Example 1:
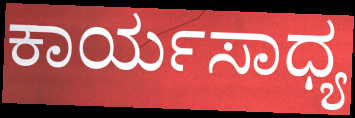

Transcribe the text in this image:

ಕಾರ್ಯಸಾಧ್ಯ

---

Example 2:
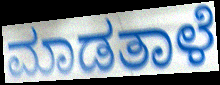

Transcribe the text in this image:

ಮಾಡತಾಳೆ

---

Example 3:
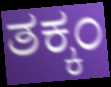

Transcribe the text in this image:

ತಕ್ಕಂ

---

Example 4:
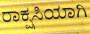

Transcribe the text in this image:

ರಾಕ್ಷಸಿಯಾಗಿ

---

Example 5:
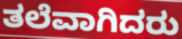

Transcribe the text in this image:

ತಲೆವಾಗಿದರು